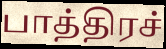
பாத்திரச்